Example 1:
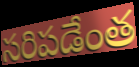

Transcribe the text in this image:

సరిపడేంత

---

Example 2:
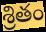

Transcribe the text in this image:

శ్రితం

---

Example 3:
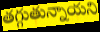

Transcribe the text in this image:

తగ్గుతున్నాయని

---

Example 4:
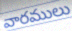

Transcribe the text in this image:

వారములు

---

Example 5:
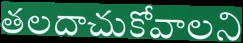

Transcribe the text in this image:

తలదాచుకోవాలని